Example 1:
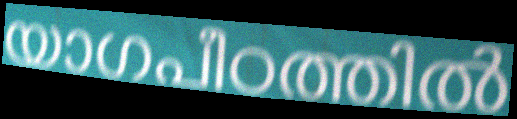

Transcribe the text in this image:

യാഗപീഠത്തിൽ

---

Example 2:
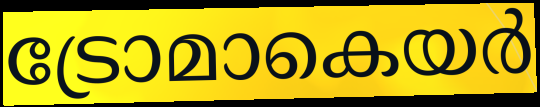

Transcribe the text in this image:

ട്രോമാകെയർ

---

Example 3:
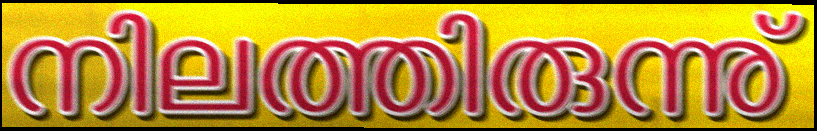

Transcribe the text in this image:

നിലത്തിരുന്നു്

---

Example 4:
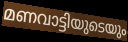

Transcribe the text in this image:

മണവാട്ടിയുടെയും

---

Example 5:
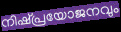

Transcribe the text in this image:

നിഷ്പ്രയോജനവും